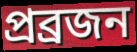
প্রব্রজন